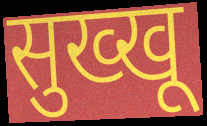
सुख्खू